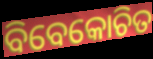
ବିବେକୋଚିତ